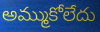
అమ్ముకోలేదు